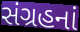
સંગ્રહનાં